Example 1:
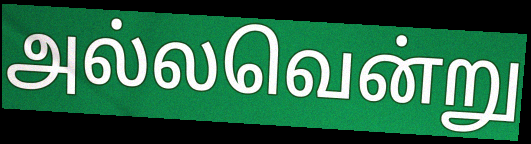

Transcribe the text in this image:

அல்லவென்று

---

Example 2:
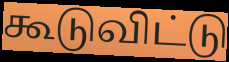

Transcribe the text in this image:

கூடுவிட்டு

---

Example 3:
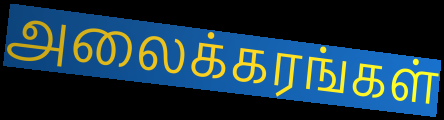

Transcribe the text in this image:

அலைக்கரங்கள்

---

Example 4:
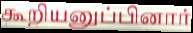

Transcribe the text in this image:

கூறியனுப்பினார்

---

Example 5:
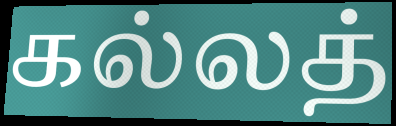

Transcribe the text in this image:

கல்லத்